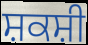
ਸ਼ਕਸ਼ੀ